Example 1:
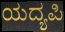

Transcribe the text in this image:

ಯದ್ಯಪಿ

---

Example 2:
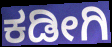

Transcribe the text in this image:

ಕಡೀಗಿ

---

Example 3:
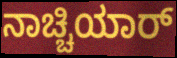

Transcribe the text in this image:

ನಾಚ್ಚಿಯಾರ್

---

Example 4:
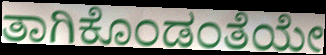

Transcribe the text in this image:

ತಾಗಿಕೊಂಡಂತೆಯೇ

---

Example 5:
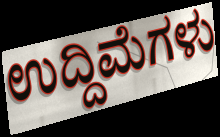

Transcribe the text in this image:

ಉದ್ದಿಮೆಗಳು